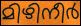
മിഴിനീർ